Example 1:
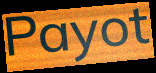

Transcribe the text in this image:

Payot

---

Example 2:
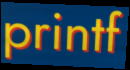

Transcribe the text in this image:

printf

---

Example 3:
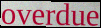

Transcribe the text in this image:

overdue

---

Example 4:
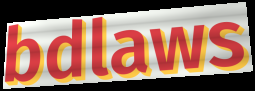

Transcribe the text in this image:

bdlaws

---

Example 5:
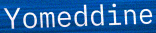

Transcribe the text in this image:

Yomeddine